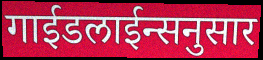
गाईडलाईन्सनुसार